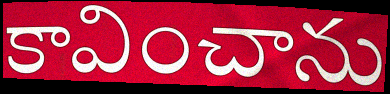
కావించాను